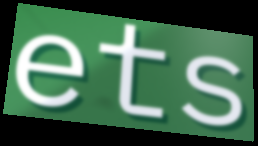
ets